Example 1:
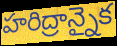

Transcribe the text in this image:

హరిద్రాన్నైక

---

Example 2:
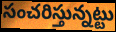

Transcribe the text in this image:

సంచరిస్తున్నట్టు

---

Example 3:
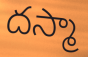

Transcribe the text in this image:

దస్మా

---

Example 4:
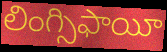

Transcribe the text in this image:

లింగ్సిఫాయీ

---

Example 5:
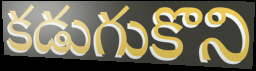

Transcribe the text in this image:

కడుగుకొని